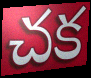
చక